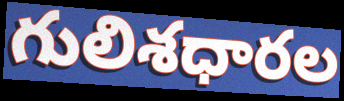
గులిశధారల